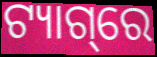
ଟ୍ୟାଗ୍‌ରେ